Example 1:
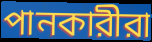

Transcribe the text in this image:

পানকারীরা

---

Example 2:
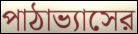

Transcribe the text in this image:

পাঠাভ্যাসের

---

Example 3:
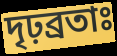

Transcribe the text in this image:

দৃঢ়ব্রতাঃ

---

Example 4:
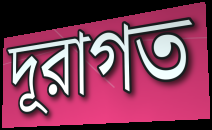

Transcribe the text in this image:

দূরাগত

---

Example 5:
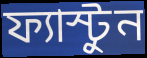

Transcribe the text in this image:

ফ্যাস্টুন